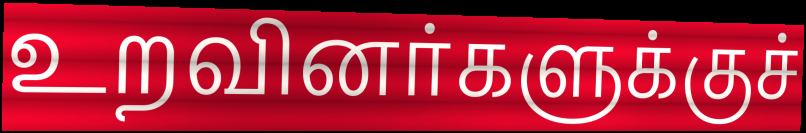
உறவினர்களுக்குச்